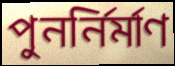
পুনৰ্নিৰ্মাণ